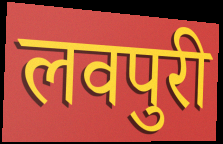
लवपुरी